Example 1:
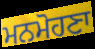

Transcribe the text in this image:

ਮਨਮੋਹਣਾ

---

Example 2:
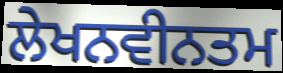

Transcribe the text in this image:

ਲੇਖਨਵੀਨਤਮ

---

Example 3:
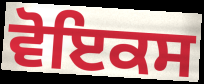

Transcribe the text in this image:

ਵੋਇਕਸ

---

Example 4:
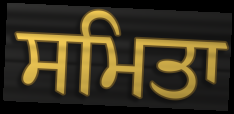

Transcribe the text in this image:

ਸਮਿਤਾ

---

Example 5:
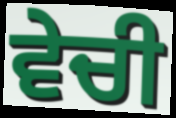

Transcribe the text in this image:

ਵੇਚੀ